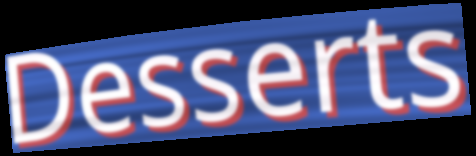
Desserts